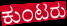
ಕುಂಟರು